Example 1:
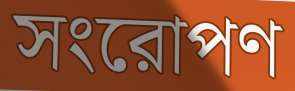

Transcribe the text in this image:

সংরোপণ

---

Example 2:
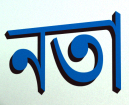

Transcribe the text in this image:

নতা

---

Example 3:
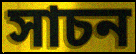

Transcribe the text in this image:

সাচন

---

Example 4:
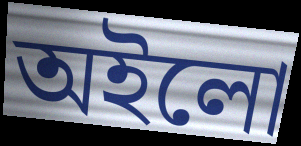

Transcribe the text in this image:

অইলো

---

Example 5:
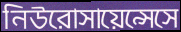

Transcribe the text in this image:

নিউরোসায়েন্সেসে